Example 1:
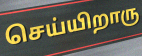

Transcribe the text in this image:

செய்யிறாரு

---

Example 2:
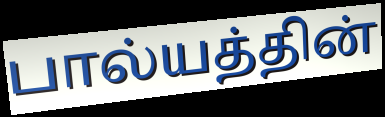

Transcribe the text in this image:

பால்யத்தின்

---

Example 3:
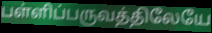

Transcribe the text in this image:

பள்ளிப்பருவத்திலேயே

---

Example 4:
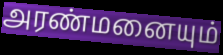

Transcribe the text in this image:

அரண்மனையும்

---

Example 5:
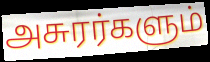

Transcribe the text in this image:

அசுரர்களும்